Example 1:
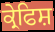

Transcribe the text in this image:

ਕ੍ਰੇਫਿਸ਼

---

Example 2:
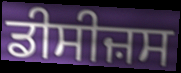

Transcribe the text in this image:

ਡੀਸੀਜ਼ਸ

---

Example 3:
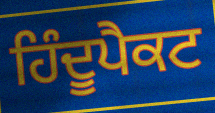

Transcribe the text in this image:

ਹਿੰਦੂਪੈਕਟ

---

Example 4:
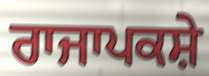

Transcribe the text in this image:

ਰਾਜਾਪਕਸ਼ੇ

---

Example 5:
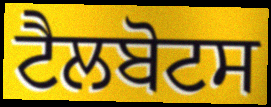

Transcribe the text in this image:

ਟੈਲਬੋਟਸ